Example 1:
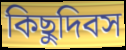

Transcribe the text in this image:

কিছুদিবস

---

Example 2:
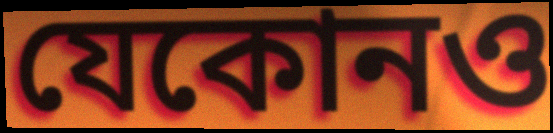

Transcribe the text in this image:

যেকোনও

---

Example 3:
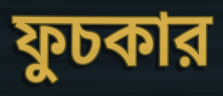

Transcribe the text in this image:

ফুচকার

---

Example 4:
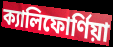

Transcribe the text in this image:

ক্যালিফোর্ণিয়া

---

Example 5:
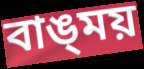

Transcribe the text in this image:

বাঙ্‌ময়